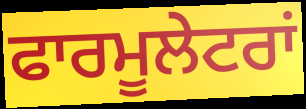
ਫਾਰਮੂਲੇਟਰਾਂ